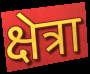
क्षेत्रा